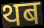
थब